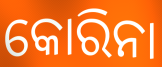
କୋରିନା